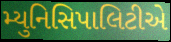
મ્યુનિસિપાલિટીએ